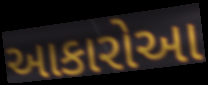
આકારોઆ